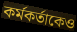
কর্মকর্তাকেও